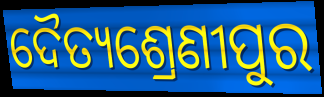
ଦୈତ୍ୟଶ୍ରେଣୀପୁର